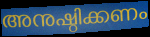
അനുഷ്ഠിക്കണം